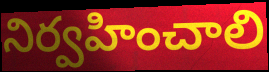
నిర్వహించాలి